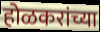
होळकरांच्या